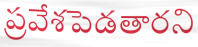
ప్రవేశపెడతారని